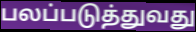
பலப்படுத்துவது